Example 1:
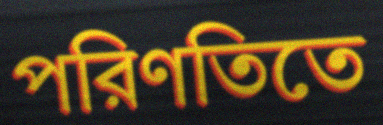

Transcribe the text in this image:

পরিণতিতে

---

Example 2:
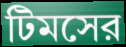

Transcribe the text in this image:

টিমসের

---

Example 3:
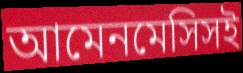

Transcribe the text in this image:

আমেনমেসিসই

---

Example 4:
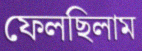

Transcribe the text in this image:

ফেলছিলাম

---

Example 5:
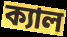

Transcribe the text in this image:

ক্যাল